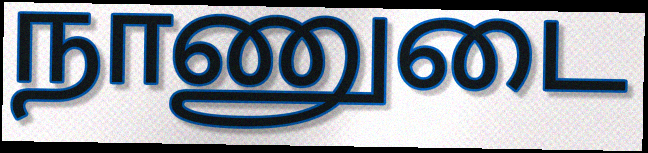
நாணுடை